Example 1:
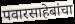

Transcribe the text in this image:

पवारसाहेबांचा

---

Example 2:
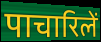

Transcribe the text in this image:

पाचारिलें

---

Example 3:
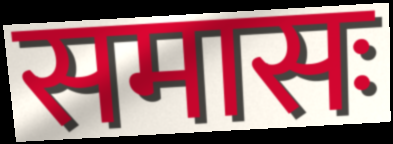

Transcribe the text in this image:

समासः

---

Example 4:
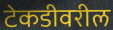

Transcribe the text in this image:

टेकडीवरील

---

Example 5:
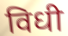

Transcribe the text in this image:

विधी